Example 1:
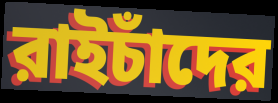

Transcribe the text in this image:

রাইচাঁদের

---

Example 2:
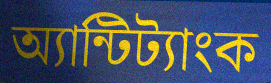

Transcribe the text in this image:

অ্যান্টিট্যাংক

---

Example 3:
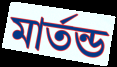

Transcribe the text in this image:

মার্তন্ড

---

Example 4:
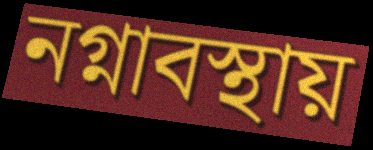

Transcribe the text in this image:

নগ্নাবস্থায়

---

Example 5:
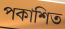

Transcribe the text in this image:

পকাশিত